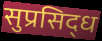
सुप्रसिद्ध